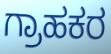
ಗ್ರಾಹಕರ